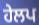
ਹੇਲਪ